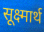
सूक्ष्मार्थ